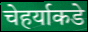
चेहर्याकडे